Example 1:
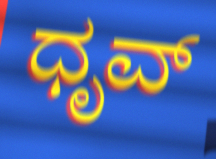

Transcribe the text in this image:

ಧೃವ್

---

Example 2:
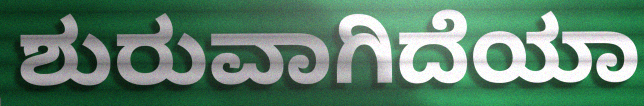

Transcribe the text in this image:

ಶುರುವಾಗಿದೆಯಾ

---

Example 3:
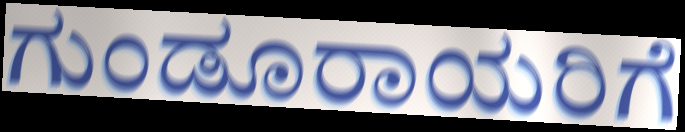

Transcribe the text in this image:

ಗುಂಡೂರಾಯರಿಗೆ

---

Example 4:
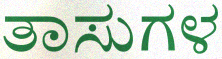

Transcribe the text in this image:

ತಾಸುಗಳ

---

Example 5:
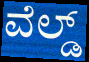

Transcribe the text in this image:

ವೆಲ್ಡ್